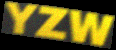
YZW